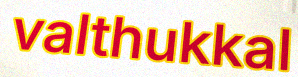
valthukkal